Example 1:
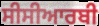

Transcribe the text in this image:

ਸੀਸੀਆਰਬੀ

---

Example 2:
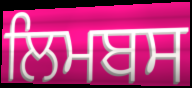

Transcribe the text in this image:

ਲਿਮਬਸ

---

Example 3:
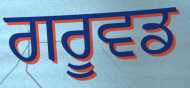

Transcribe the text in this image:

ਗਰੂਵਡ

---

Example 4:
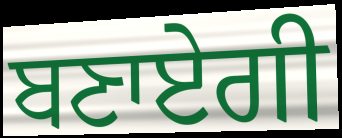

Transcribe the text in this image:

ਬਣਾਏਗੀ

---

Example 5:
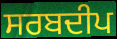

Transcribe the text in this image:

ਸਰਬਦੀਪ